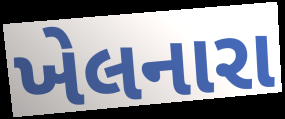
ખેલનારા